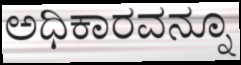
ಅಧಿಕಾರವನ್ನೂ